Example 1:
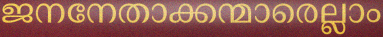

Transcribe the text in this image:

ജനനേതാക്കന്മാരെല്ലാം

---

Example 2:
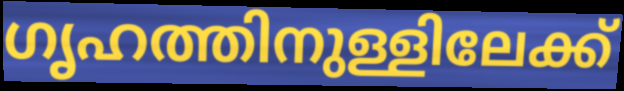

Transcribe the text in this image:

ഗൃഹത്തിനുള്ളിലേക്ക്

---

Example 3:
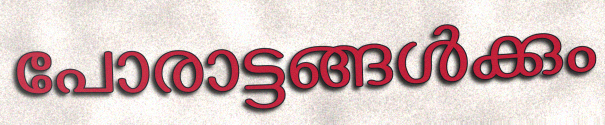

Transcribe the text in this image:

പോരാട്ടങ്ങൾക്കും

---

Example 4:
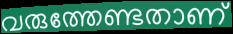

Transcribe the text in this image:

വരുത്തേണ്ടതാണ്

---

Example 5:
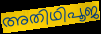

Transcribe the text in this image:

അതിഥിപൂജ